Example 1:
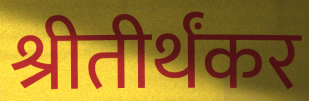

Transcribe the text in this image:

श्रीतीर्थंकर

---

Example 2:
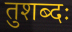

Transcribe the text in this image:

तुशब्दः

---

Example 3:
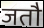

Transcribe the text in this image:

जतौ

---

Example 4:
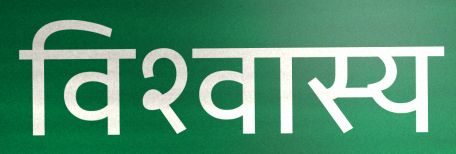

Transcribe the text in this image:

विश्वास्य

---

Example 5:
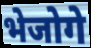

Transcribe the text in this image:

भेजोगे